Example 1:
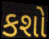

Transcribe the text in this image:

કશો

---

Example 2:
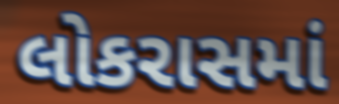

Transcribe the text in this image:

લોકરાસમાં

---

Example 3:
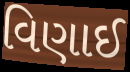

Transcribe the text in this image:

વિણાઈ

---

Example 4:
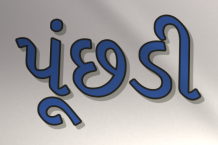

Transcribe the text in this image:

પૂંછડી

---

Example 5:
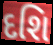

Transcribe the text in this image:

દશિ